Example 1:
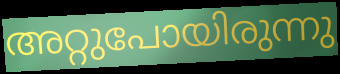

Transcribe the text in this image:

അറ്റുപോയിരുന്നു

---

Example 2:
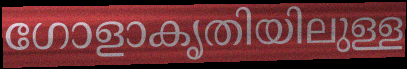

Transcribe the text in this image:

ഗോളാകൃതിയിലുള്ള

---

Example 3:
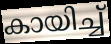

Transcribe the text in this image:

കായിച്ച്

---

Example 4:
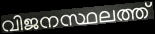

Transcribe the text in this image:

വിജനസ്ഥലത്ത്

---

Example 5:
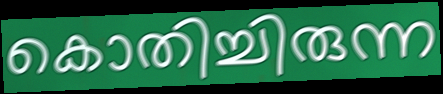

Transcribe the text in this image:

കൊതിച്ചിരുന്ന